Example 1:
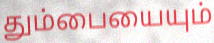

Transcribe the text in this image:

தும்பையையும்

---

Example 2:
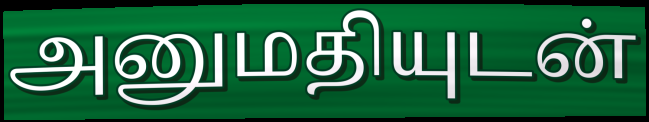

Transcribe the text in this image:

அனுமதியுடன்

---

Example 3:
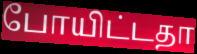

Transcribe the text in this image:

போயிட்டதா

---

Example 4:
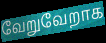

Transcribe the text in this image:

வேறுவேறாக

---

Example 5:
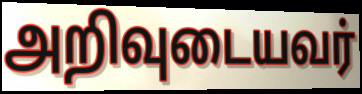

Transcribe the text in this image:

அறிவுடையவர்